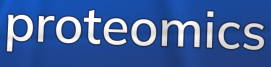
proteomics